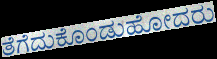
ತೆಗೆದುಕೊಂಡುಹೋದರು